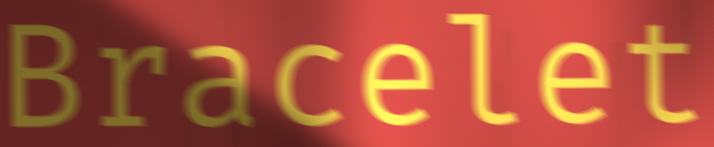
Bracelet